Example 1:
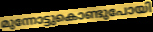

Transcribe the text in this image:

മുന്നോട്ടുകൊണ്ടുപോയി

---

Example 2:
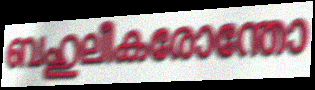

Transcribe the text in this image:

ബഹുലീകരോന്തോ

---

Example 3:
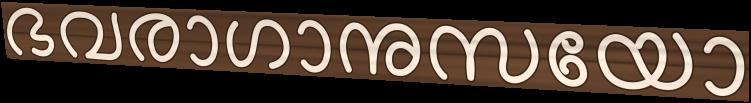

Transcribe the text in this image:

ഭവരാഗാനുസയോ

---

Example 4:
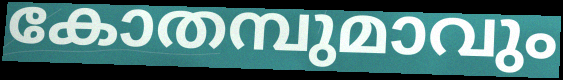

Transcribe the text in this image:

കോതമ്പുമാവും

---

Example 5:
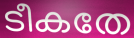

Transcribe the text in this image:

ടീകതേ